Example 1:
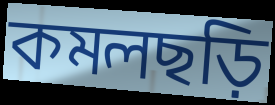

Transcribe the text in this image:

কমলছড়ি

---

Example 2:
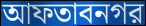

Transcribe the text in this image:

আফতাবনগর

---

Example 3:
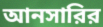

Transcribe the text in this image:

আনসারির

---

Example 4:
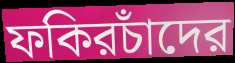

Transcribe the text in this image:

ফকিরচাঁদের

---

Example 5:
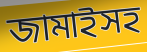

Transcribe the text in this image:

জামাইসহ